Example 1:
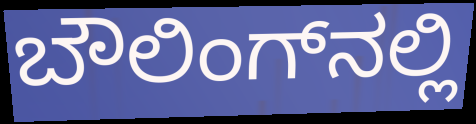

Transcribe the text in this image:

ಬೌಲಿಂಗ್‌ನಲ್ಲಿ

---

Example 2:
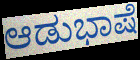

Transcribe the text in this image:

ಆಡುಭಾಷೆ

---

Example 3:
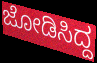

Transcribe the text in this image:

ಜೋಡಿಸಿದ್ದ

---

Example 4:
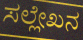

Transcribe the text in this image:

ಸಲ್ಲೇಖನ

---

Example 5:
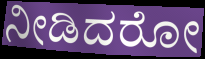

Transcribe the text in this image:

ನೀಡಿದರೋ